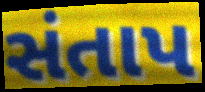
સંતાપ